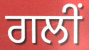
ਗਲੀਂ